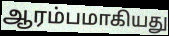
ஆரம்பமாகியது